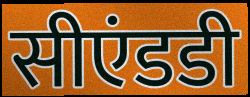
सीएंडडी